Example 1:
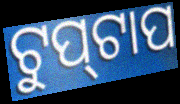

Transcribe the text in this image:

ଟୁପ୍‌ଟାପ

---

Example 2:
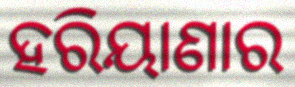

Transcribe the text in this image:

ହରିୟାଣାର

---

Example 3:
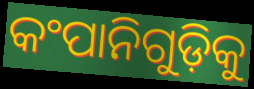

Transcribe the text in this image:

କଂପାନିଗୁଡ଼ିକୁ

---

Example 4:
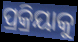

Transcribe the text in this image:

ପ୍ରକ୍ରିୟାକୁ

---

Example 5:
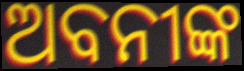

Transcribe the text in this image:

ଅବନୀଙ୍କ